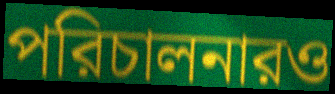
পরিচালনারও